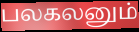
பலகலனும்